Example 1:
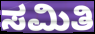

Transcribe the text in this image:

ಸಮಿತಿ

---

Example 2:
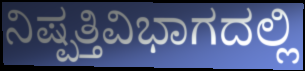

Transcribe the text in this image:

ನಿಷ್ಪತ್ತಿವಿಭಾಗದಲ್ಲಿ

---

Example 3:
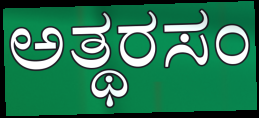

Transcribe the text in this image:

ಅತ್ಥರಸಂ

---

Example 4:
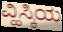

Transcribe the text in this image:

ವ್ಹಿಸ್ಕಿಯ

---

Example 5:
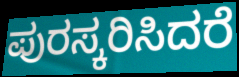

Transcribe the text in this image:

ಪುರಸ್ಕರಿಸಿದರೆ